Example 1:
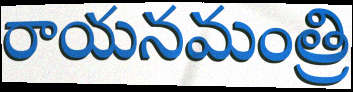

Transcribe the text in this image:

రాయనమంత్రి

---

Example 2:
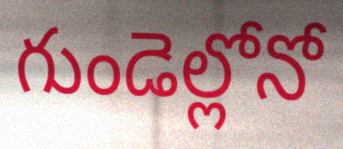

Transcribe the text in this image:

గుండెల్లోనో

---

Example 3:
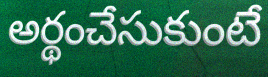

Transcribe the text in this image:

అర్థంచేసుకుంటే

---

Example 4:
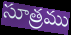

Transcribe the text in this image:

సూత్రము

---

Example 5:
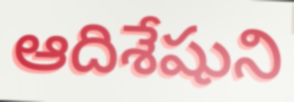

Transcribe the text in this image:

ఆదిశేషుని